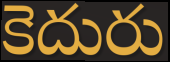
కెదురు